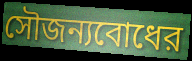
সৌজন্যবোধের